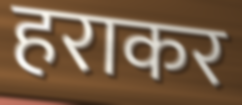
हराकर